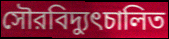
সৌরবিদ্যুৎচালিত